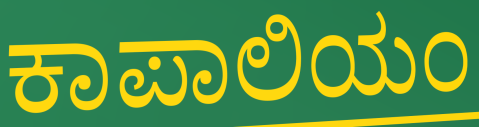
ಕಾಪಾಲಿಯಂ